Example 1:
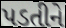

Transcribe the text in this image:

પડતીને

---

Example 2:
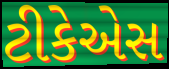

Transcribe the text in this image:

ટીકેએસ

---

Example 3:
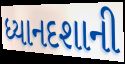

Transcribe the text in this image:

ધ્યાનદશાની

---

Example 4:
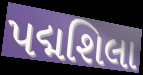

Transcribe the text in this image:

પદ્મશિલા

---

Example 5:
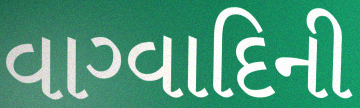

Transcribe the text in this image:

વાગ્વાદિની